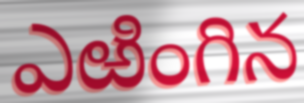
ఎఱింగిన